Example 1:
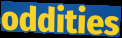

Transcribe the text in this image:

oddities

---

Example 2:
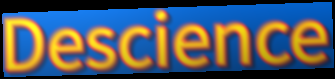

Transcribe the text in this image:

Descience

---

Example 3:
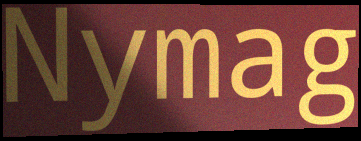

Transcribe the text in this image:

Nymag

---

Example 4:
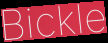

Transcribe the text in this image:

Bickle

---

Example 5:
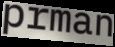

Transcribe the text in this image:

prman